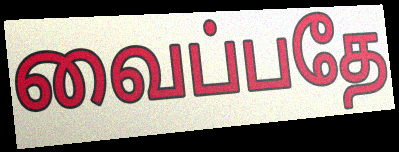
வைப்பதே